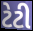
ટેટી